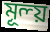
মূল্য়